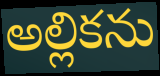
అల్లికను